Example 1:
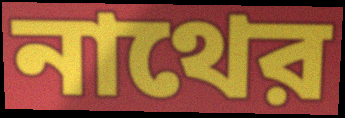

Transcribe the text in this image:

নাথের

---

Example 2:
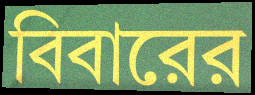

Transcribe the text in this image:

বিবারের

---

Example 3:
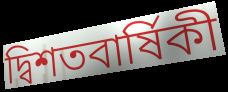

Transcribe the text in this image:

দ্বিশতবার্ষিকী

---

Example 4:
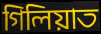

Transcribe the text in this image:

গিলিয়াত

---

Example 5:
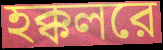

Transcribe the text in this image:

হক্কলরে